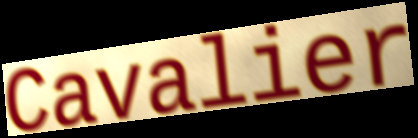
Cavalier